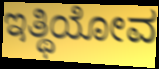
ಇತ್ಥಿಯೋವ